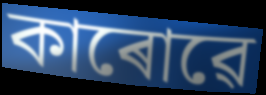
কাৰোৱে